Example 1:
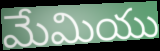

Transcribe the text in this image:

మేమియు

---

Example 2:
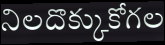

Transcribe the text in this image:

నిలదొక్కుకోగల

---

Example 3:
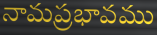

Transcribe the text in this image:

నామప్రభావము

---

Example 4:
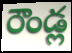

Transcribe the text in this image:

రౌండ్ల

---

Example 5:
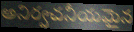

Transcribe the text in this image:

అనిర్వచనీయమైన